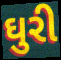
ઘુરી